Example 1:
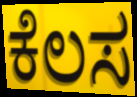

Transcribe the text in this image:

ಕೆಲಸ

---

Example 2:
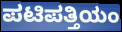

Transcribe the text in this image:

ಪಟಿಪತ್ತಿಯಂ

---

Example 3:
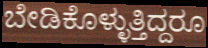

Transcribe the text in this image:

ಬೇಡಿಕೊಳ್ಳುತ್ತಿದ್ದರೂ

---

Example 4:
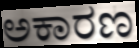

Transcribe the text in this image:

ಅಕಾರಣ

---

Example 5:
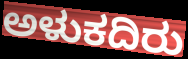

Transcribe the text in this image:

ಅಳುಕದಿರು